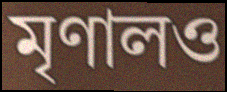
মৃণালও